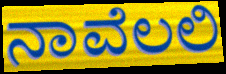
ನಾವೆಲಲಿ